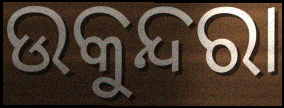
ଉକୁନ୍ଦରା